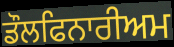
ਡੌਲਫਿਨਾਰੀਅਮ